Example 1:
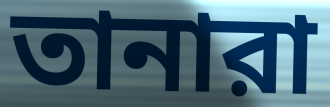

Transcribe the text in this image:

তানারা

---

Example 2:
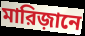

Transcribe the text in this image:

মারিজ়ানে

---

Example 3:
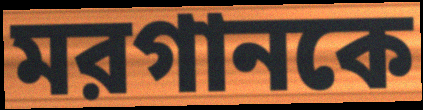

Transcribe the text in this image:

মরগানকে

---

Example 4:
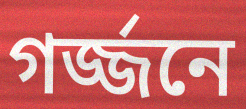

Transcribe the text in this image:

গর্জ্জনে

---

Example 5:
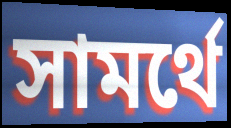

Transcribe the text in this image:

সামর্থে